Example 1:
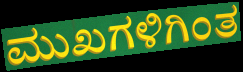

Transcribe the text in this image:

ಮುಖಗಳಿಗಿಂತ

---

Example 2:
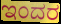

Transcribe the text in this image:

ಇಂದರ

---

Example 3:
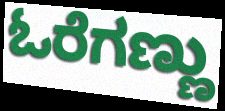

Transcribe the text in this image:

ಓರೆಗಣ್ಣು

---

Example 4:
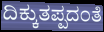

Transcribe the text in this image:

ದಿಕ್ಕುತಪ್ಪದಂತೆ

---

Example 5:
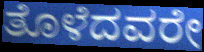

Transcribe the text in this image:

ತೊಳೆದವರೇ